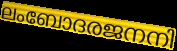
ലംബോദരജനനി